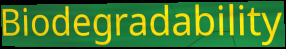
Biodegradability